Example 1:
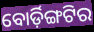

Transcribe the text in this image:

ବୋର୍ଡ଼ିଙ୍ଗଟିର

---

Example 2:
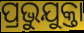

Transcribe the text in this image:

ପ୍ରଭୁଯୁକ୍ତା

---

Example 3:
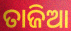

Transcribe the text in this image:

ତାଜିଆ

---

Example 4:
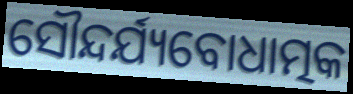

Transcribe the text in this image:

ସୌନ୍ଦର୍ଯ୍ୟବୋଧାତ୍ମକ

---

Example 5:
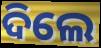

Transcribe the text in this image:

ଦିଲେ